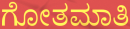
ಗೋತಮಾತಿ